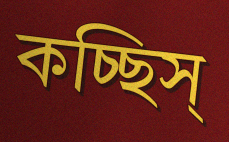
কচ্ছিস্